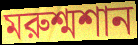
মরুশ্মশান